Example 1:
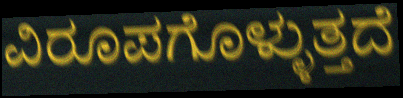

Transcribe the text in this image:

ವಿರೂಪಗೊಳ್ಳುತ್ತದೆ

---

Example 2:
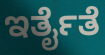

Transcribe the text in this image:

ಇರ್ತೈತೆ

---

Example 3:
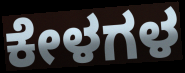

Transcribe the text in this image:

ಕೇಳಗಳ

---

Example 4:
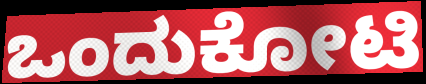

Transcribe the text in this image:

ಒಂದುಕೋಟಿ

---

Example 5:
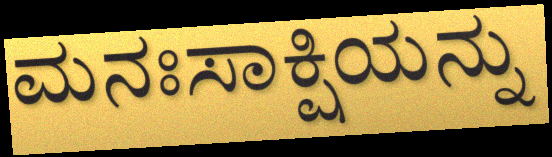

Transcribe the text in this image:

ಮನಃಸಾಕ್ಷಿಯನ್ನು